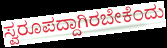
ಸ್ವರೂಪದ್ದಾಗಿರಬೇಕೆಂದು